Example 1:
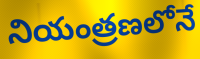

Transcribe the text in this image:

నియంత్రణలోనే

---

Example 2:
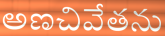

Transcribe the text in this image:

అణచివేతను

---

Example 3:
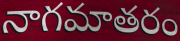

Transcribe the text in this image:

నాగమాతరం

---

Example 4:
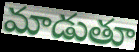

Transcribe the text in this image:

మాడుతూ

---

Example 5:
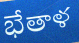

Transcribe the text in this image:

భేతాళ